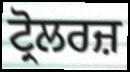
ਟ੍ਰੋਲਰਜ਼